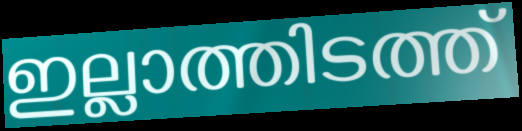
ഇല്ലാത്തിടത്ത്